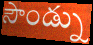
సౌండ్ను